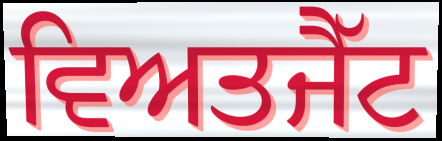
ਵਿਅਤਜੈੱਟ